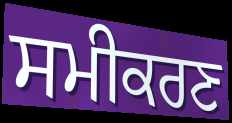
ਸਮੀਕਰਣ